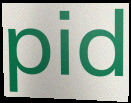
pid